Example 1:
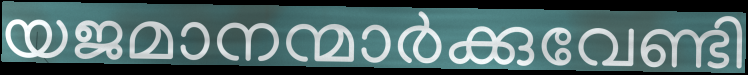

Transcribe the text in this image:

യജമാനന്മാർക്കുവേണ്ടി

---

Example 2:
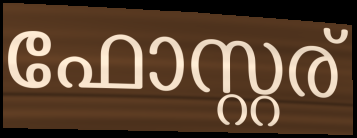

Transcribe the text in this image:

ഫോസ്റ്റര്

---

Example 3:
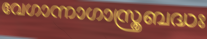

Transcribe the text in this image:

വേഗാന്നാഗാസ്ത്രബദ്ധഃ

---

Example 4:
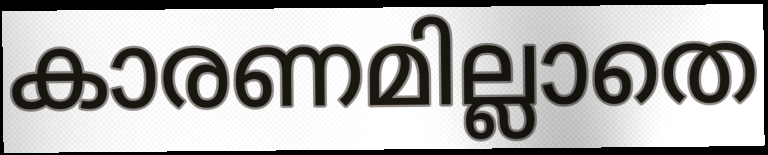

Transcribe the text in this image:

കാരണമില്ലാതെ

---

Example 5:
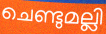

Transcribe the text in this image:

ചെണ്ടുമല്ലി